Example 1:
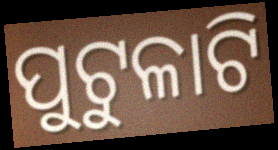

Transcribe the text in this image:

ପୁଟୁଳାଟି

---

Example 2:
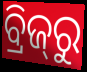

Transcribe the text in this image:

ବ୍ରିଜ୍‌ରୁ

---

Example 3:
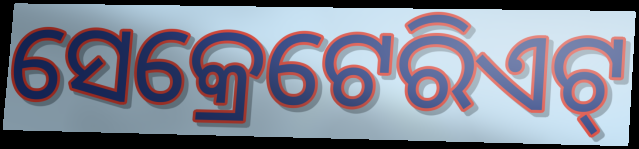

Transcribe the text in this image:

ସେକ୍ରେଟେରିଏଟ୍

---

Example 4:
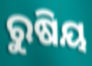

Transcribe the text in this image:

ରୁଷିୟ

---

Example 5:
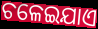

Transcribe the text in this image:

ଚଳେଇଯାଏ